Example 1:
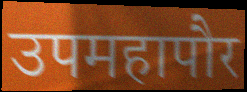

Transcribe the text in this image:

उपमहापौर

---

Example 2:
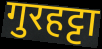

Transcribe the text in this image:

गुरहट्टा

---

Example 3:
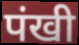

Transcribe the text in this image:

पंखी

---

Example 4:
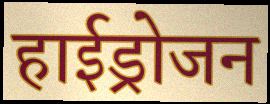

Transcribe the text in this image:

हाईड्रोजन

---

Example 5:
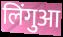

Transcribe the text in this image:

लिंगुआ